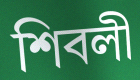
শিবলী